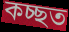
কচ্ছত